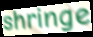
shringe